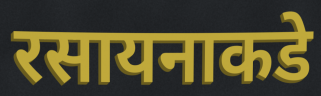
रसायनाकडे